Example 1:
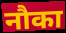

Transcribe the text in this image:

नौका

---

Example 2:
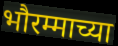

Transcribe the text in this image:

भौरम्माच्या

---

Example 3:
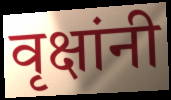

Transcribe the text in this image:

वृक्षांनी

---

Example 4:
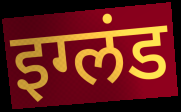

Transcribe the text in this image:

इग्लंड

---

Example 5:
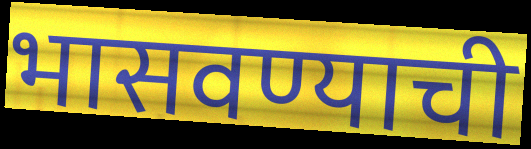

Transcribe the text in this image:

भासवण्याची